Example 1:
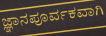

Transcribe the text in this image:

ಜ್ಞಾನಪೂರ್ವಕವಾಗಿ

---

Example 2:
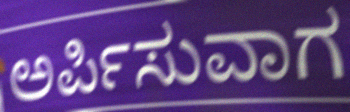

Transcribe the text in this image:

ಅರ್ಪಿಸುವಾಗ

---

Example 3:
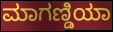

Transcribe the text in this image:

ಮಾಗಣ್ಡಿಯಾ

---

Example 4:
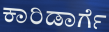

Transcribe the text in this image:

ಕಾರಿಡಾರ್ಗೆ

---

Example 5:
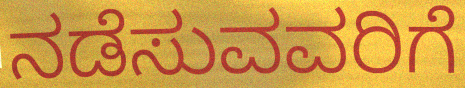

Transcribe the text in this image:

ನಡೆಸುವವರಿಗೆ